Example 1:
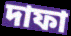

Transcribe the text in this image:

দাফা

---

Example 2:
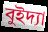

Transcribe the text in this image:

বুইদ্যা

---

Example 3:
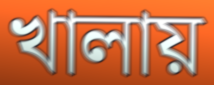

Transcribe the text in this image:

খালায়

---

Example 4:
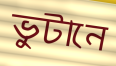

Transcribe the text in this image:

ভুটানে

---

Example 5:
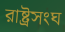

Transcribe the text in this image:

রাষ্ট্রসংঘ